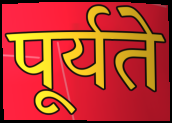
पूर्यते